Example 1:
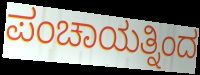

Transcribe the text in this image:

ಪಂಚಾಯತ್ನಿಂದ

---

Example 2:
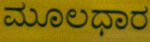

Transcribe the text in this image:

ಮೂಲಧಾರ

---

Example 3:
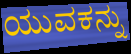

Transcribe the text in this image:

ಯುವಕನ್ನು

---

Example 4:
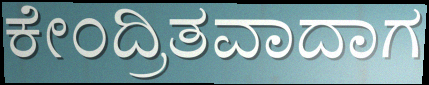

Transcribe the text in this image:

ಕೇಂದ್ರಿತವಾದಾಗ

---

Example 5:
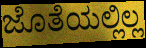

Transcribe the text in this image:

ಜೊತೆಯಲ್ಲಿಲ್ಲ